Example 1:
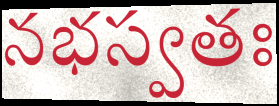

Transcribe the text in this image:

నభస్వతః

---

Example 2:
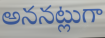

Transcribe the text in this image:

అననట్లుగా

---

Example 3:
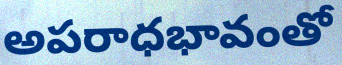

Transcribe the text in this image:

అపరాధభావంతో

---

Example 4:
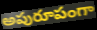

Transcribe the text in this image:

అపురూపంగా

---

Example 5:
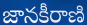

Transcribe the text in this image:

జానకీరాణి